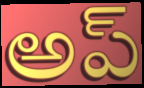
అప్